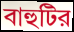
বাহুটির